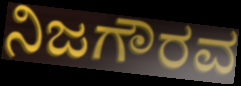
ನಿಜಗೌರವ